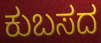
ಕುಬಸದ